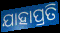
ଯାହାପ୍ରତି